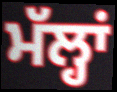
ਮੱਲ੍ਹਾਂ